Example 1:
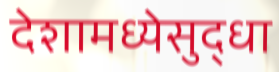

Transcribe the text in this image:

देशामध्येसुद्धा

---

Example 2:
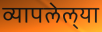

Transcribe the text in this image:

व्यापलेल्या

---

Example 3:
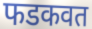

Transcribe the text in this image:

फडकवत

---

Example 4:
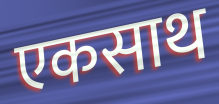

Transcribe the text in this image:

एकसाथ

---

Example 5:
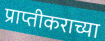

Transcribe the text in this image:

प्राप्तीकराच्या